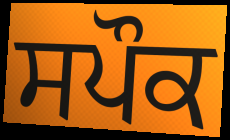
ਸਪੌਕ